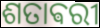
ଶତାଵରୀ